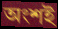
অংশই